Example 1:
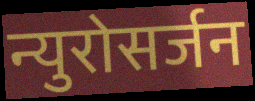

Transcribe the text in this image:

न्युरोसर्जन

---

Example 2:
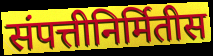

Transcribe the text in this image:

संपत्तीनिर्मितीस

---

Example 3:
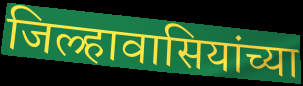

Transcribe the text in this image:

जिल्हावासियांच्या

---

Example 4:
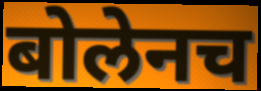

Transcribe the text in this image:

बोलेनच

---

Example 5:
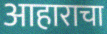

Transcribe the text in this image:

आहाराचा